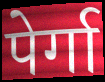
पेर्गा